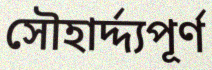
সৌহার্দ্দ্যপূর্ণ